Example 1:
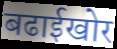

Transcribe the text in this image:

बढाईखोर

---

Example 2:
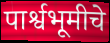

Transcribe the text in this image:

पार्श्वभूमीचे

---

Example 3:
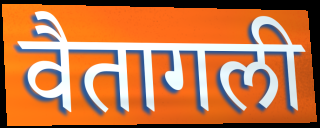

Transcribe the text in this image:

वैतागली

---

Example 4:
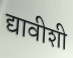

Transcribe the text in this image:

द्यावीशी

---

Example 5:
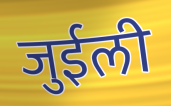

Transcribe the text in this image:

जुईली